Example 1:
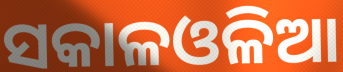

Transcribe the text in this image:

ସକାଳଓଳିଆ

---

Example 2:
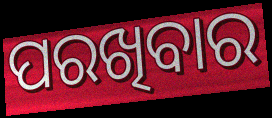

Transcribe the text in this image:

ପରଖିବାର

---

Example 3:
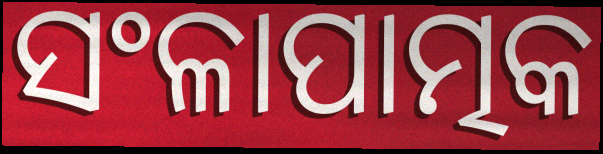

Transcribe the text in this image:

ସଂଳାପାତ୍ମକ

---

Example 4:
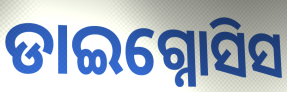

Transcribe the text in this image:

ଡାଇଗ୍ନୋସିସ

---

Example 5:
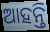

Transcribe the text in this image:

ଆହନ୍ତି